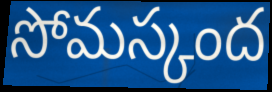
సోమస్కంద